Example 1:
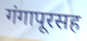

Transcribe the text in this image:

गंगापूरसह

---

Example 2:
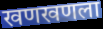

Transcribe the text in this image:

खणखणला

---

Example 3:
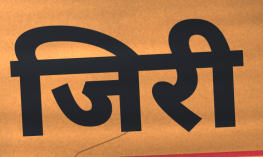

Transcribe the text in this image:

जिरी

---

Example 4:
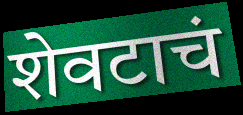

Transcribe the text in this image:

शेवटाचं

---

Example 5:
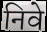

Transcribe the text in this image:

निवे